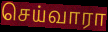
செய்வாரா